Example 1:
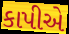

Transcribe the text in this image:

કાપીએ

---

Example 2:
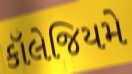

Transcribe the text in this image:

કૉલેજિયમે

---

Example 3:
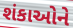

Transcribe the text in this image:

શંકાઓને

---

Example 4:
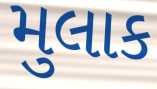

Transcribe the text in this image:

મુલાક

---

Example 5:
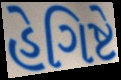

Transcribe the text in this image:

હેગિષ્ટે